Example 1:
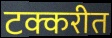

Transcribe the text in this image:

टक्करीत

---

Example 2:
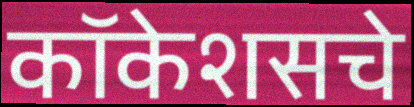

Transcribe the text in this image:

कॉकेशसचे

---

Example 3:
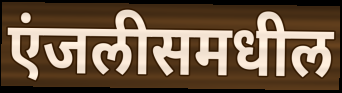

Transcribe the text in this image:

एंजलीसमधील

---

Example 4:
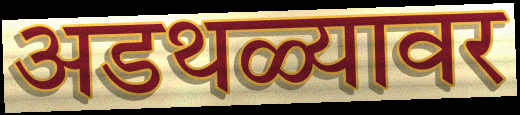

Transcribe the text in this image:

अडथळ्यावर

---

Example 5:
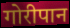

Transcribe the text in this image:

गोरीपान